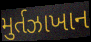
મુર્તઝાખાન